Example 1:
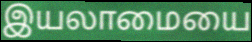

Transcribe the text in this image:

இயலாமையை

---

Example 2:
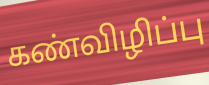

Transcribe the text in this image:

கண்விழிப்பு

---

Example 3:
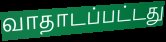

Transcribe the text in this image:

வாதாடப்பட்டது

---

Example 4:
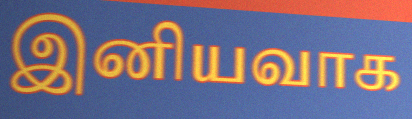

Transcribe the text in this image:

இனியவாக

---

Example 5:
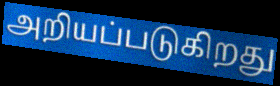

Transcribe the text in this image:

அறியப்படுகிறது